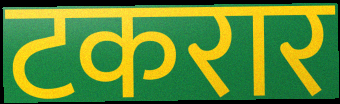
टकरार